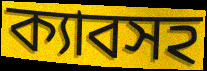
ক্যাবসহ